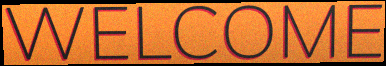
WELCOME